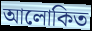
আলোকিত